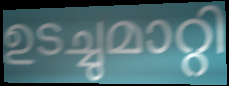
ഉടച്ചുമാറ്റി